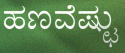
ಹಣವೆಷ್ಟು